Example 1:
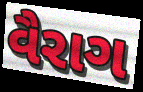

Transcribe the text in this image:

વૈરાગ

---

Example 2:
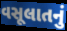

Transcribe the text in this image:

વસૂલાતનું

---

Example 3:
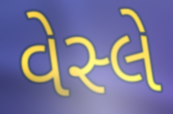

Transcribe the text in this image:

વેસ્લે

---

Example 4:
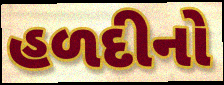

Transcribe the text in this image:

હળદીનો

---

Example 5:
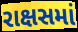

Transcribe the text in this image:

રાક્ષસમાં